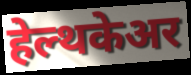
हेल्थकेअर